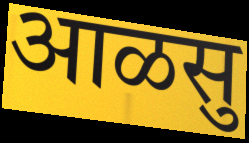
आळसु